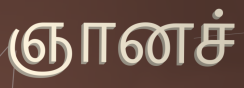
ஞானச்